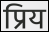
प्रिय